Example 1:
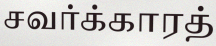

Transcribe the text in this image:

சவர்க்காரத்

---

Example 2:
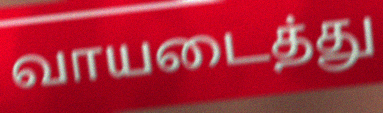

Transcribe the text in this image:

வாயடைத்து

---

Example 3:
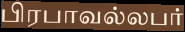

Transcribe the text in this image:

பிரபாவல்லபர்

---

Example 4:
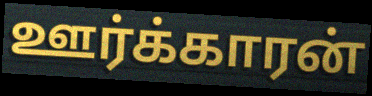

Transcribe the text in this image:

ஊர்க்காரன்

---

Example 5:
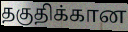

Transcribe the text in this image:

தகுதிக்கான